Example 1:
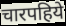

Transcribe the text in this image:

चारपहिये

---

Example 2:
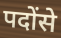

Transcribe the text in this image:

पदोंसे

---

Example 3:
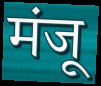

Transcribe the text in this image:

मंजू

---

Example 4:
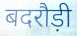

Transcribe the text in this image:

बदरौड़ी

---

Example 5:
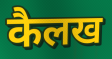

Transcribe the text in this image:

कैलख